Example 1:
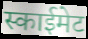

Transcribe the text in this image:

स्काईमेट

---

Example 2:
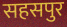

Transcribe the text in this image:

सहसपुर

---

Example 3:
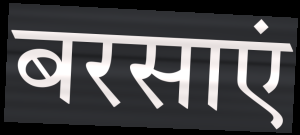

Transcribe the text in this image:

बरसाएं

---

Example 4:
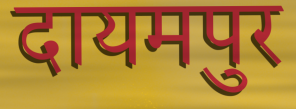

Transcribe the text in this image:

दायमपुर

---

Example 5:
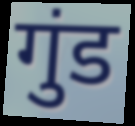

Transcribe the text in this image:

गुंड